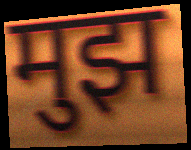
मुझ